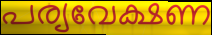
പര്യവേക്ഷണ